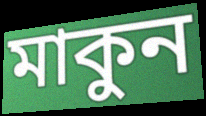
মাকুন